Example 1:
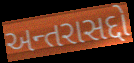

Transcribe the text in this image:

અન્તરાસદ્દો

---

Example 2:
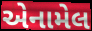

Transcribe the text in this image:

એનામેલ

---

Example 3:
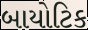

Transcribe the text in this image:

બાયોટિક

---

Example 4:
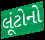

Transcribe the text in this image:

લૂંટોનો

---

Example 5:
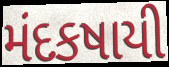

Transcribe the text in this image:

મંદકષાયી